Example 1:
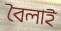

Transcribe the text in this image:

বৈলাই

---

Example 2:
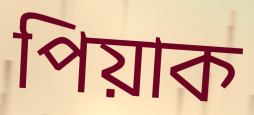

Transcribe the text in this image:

পিয়াক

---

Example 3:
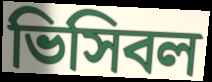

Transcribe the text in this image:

ভিসিবল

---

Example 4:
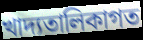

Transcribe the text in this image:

খাদ্যতালিকাগত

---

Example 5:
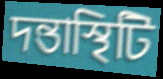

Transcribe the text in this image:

দন্তাস্থিটি